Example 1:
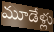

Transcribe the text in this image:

మూడేళ్లు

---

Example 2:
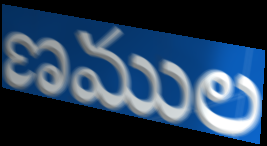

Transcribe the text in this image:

ణముల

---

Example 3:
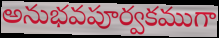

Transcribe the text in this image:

అనుభవపూర్వకముగా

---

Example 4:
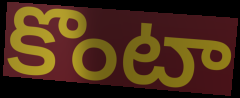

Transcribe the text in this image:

కొంటా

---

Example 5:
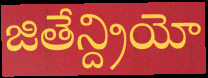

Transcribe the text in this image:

జితేన్ద్రియో